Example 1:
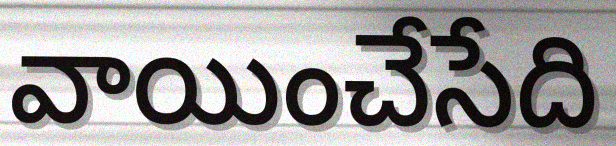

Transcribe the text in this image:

వాయించేసేది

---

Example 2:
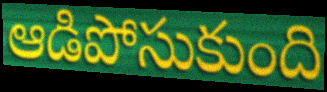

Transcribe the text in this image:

ఆడిపోసుకుంది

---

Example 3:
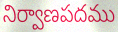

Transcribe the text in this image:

నిర్వాణపదము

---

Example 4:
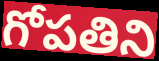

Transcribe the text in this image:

గోపతిని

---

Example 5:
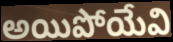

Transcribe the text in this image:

అయిపోయేవి